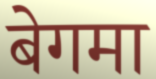
बेगमा